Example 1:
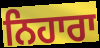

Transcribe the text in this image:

ਨਿਹਾਰਾ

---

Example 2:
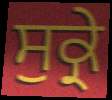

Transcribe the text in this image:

ਸੁਕ੍ਰੇ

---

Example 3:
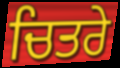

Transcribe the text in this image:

ਚਿਤਰੇ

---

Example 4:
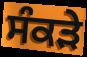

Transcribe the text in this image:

ਸੰਕੜੇ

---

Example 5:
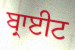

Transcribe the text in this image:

ਬ੍ਰਾਈਟ